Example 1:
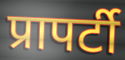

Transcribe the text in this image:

प्रापर्टी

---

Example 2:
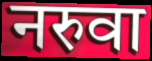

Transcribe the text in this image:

नरुवा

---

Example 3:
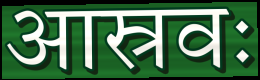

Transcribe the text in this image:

आस्रवः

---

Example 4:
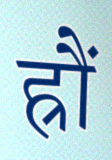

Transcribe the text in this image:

ह्रौं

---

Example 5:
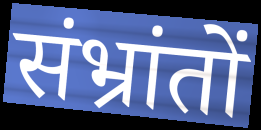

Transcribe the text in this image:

संभ्रांतों